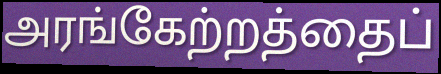
அரங்கேற்றத்தைப்